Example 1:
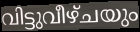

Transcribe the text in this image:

വിട്ടുവീഴ്ചയും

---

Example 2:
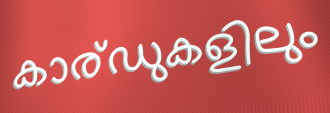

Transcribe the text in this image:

കാര്ഡുകളിലും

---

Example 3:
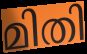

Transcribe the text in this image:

മിതി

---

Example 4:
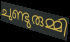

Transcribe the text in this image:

ചുണ്ടുരുമ്മി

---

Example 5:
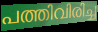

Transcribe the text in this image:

പത്തിവിരിച്ച